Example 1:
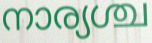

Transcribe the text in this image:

നാര്യശ്ച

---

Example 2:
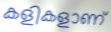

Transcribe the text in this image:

കളികളാണ്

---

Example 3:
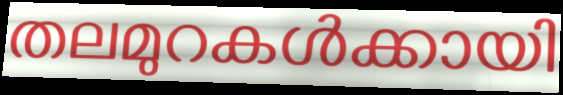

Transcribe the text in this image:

തലമുറകൾക്കായി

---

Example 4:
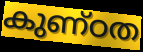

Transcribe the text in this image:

കുണ്ഠത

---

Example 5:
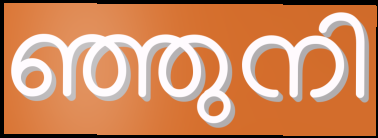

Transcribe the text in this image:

ഞ്ഞുനി